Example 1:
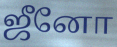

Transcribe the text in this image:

ஜீனோ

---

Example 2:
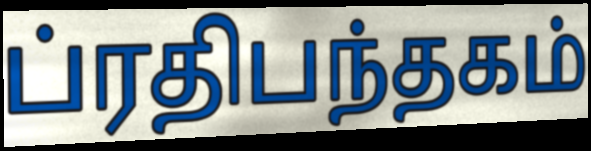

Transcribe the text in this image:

ப்ரதிபந்தகம்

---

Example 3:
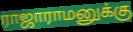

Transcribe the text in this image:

ராஜாராமனுக்கு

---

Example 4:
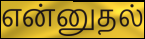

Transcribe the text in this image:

என்னுதல்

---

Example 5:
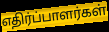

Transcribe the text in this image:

எதிர்ப்பாளர்கள்